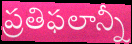
ప్రతిఫలాన్నీ